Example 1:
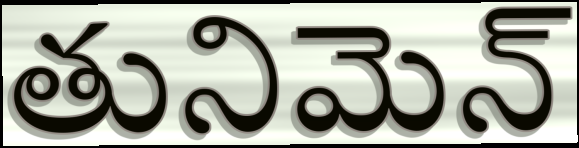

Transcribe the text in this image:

తునిమెన్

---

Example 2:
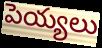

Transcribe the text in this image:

పెయ్యలు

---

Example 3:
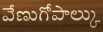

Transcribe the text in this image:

వేణుగోపాల్కు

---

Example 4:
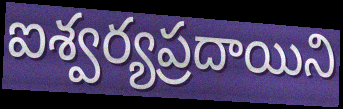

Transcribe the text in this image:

ఐశ్వర్యప్రదాయిని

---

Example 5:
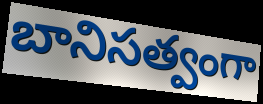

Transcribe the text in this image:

బానిసత్వంగా